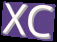
XC